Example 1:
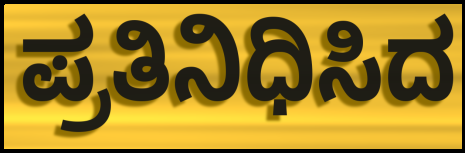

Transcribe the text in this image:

ಪ್ರತಿನಿಧಿಸಿದ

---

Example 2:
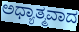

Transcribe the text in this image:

ಅಧ್ಯಾತ್ಮವಾದ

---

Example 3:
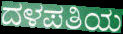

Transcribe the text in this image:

ದಳಪತಿಯ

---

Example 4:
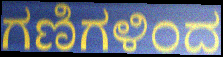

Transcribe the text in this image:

ಗಣಿಗಳಿಂದ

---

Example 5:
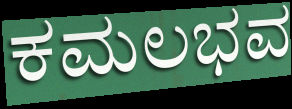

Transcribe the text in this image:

ಕಮಲಭವ